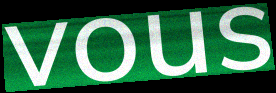
vous